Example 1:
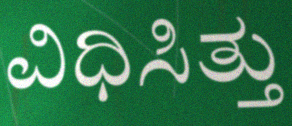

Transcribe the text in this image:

ವಿಧಿಸಿತ್ತು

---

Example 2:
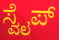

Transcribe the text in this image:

ಸ್ವೈಪ್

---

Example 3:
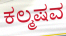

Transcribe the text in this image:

ಕಲ್ಮಷವ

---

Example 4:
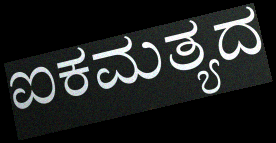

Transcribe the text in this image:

ಐಕಮತ್ಯದ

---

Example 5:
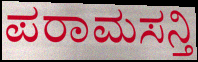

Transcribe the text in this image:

ಪರಾಮಸನ್ತಿ